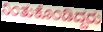
ನಿಂತುಕೊಂಡಿದ್ದರು